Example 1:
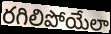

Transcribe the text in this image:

రగిలిపోయేలా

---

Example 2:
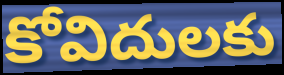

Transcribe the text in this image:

కోవిదులకు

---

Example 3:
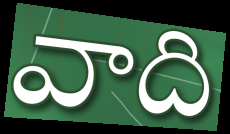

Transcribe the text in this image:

వాది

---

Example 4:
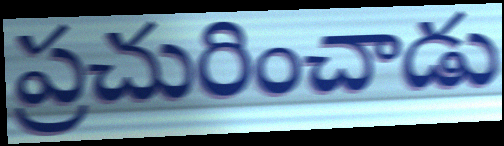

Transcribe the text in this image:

ప్రచురించాడు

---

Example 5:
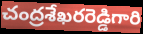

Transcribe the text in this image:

చంద్రశేఖరరెడ్డిగారి